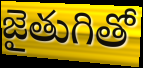
జైతుగితో